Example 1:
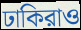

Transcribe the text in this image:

ঢাকিরাও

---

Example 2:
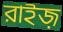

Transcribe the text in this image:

রাইজ়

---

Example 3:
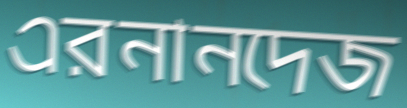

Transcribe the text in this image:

এরনানদেজ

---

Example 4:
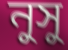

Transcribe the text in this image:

নুসু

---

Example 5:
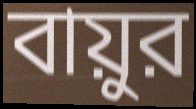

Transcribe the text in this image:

বায়ুর